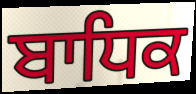
ਬਾਧਿਕ